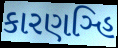
કારણઞ્હિ